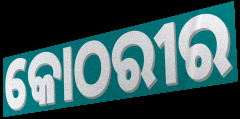
କୋଠରୀର